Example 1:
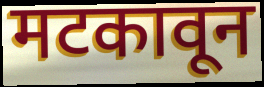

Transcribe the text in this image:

मटकावून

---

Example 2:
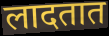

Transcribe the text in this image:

लादतात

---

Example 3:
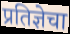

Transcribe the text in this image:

प्रतिज्ञेचा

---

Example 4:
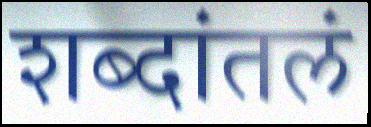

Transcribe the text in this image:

शब्दांतलं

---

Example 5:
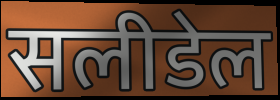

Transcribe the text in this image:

सलीडेल